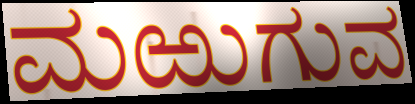
ಮಱುಗುವ